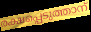
രക്ഷപ്പെടുത്താന്